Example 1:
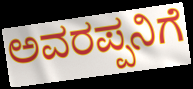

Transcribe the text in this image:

ಅವರಪ್ಪನಿಗೆ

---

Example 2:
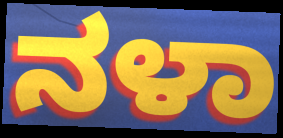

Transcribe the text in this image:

ನಳಾ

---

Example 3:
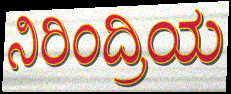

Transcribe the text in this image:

ನಿರಿಂದ್ರಿಯ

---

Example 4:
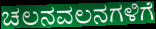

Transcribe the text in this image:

ಚಲನವಲನಗಳಿಗೆ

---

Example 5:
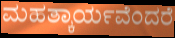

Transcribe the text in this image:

ಮಹತ್ಕಾರ್ಯವೆಂದರೆ